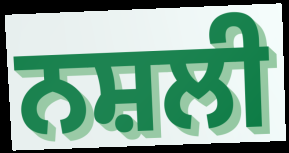
ਨਸ਼ਲੀ